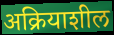
अक्रियाशील